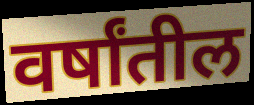
वर्षांतील